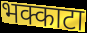
भक्काटा